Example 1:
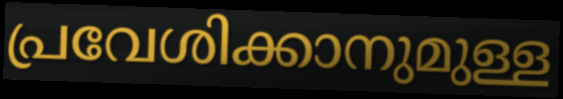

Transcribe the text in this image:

പ്രവേശിക്കാനുമുള്ള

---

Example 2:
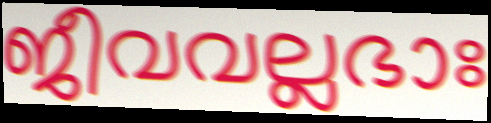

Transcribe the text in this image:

ജീവവല്ലഭാഃ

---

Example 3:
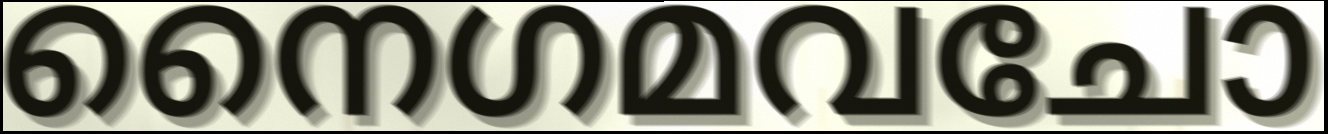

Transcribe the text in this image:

നൈഗമവചോ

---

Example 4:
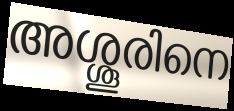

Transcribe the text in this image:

അശ്ശൂരിനെ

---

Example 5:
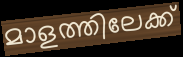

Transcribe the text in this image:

മാളത്തിലേക്ക്